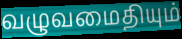
வழுவமைதியும்